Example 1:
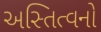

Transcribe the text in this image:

અસ્તિત્વનો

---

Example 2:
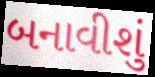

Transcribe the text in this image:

બનાવીશું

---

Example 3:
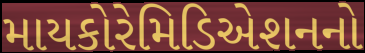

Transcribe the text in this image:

માયકોરેમિડિએશનનો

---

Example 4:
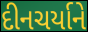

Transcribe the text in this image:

દીનચર્યાને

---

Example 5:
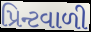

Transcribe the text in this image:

પ્રિન્ટવાળી